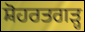
ਸ਼ੋਹਰਤਗੜ੍ਹ